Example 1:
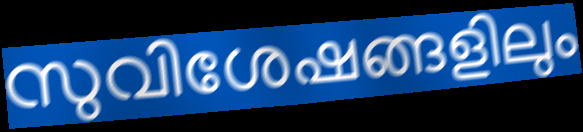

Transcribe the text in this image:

സുവിശേഷങ്ങളിലും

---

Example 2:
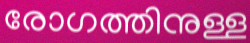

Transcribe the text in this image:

രോഗത്തിനുള്ള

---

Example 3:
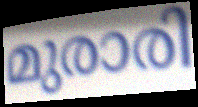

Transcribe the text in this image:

മുരാരി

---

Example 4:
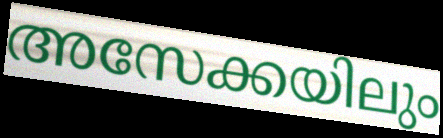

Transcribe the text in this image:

അസേക്കയിലും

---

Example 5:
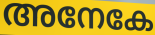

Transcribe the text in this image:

അനേകേ